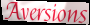
Aversions